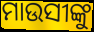
ମାଉସୀଙ୍କୁ